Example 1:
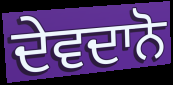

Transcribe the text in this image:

ਦੇਵਦਾਨੋ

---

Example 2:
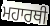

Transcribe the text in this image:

ਮਹਾਰਥੀ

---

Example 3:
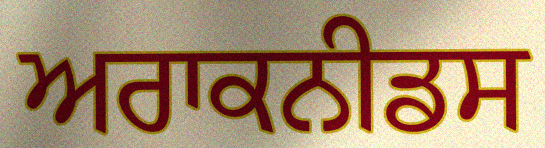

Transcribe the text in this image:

ਅਰਾਕਨੀਡਸ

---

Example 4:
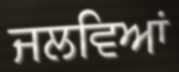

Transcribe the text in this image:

ਜਲਵਿਆਂ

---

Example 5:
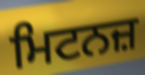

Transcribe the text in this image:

ਮਿਟਨਜ਼